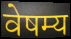
वेषम्य